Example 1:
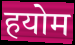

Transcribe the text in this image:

हयोम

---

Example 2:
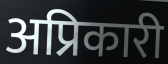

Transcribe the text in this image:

अप्रिकारी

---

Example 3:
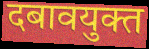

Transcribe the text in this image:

दबावयुक्त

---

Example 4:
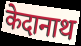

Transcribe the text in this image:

केदानाथ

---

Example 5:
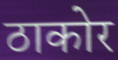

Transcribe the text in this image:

ठाकोर